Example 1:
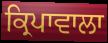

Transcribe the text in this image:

ਕ੍ਰਿਪਾਵਾਲਾ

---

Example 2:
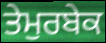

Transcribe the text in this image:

ਤੇਮੁਰਬੇਕ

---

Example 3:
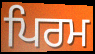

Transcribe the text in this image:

ਪਿਰਮ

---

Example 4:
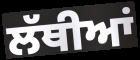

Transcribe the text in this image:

ਲੱਥੀਆਂ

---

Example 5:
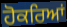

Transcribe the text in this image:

ਹੋਕਰਿਆਂ